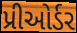
પ્રીઓર્ડર